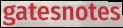
gatesnotes